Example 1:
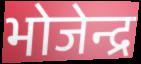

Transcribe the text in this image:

भोजेन्द्र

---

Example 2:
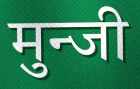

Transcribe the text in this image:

मुन्जी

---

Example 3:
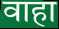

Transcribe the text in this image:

वाहा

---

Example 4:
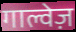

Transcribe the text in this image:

गाल्वेज़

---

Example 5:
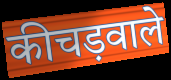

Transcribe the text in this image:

कीचड़वाले